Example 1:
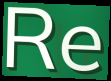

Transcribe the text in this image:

Re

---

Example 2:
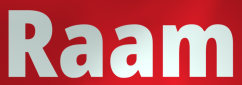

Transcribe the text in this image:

Raam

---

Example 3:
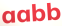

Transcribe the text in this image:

aabb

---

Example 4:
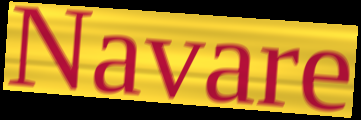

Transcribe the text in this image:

Navare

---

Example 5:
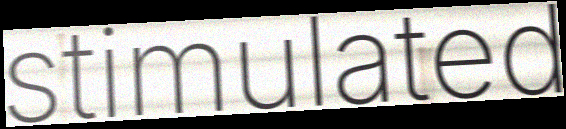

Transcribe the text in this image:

stimulated